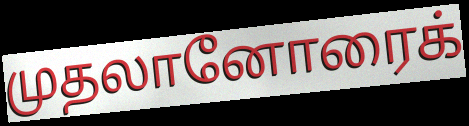
முதலானோரைக்